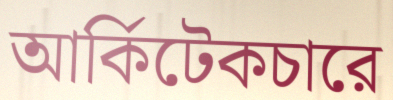
আর্কিটেকচারে